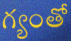
గ్యంతో